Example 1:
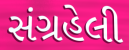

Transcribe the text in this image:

સંગ્રહેલી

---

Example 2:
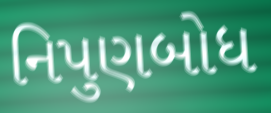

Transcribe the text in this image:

નિપુણબોધ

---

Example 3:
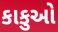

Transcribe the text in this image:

કાકુઓ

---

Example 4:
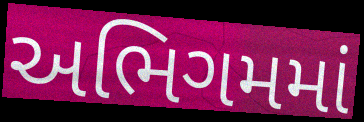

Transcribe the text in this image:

અભિગમમાં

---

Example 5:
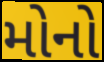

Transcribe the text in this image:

મોનો